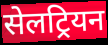
सेलट्रियन